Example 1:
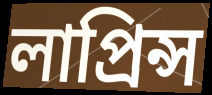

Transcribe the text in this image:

লাপ্রিন্স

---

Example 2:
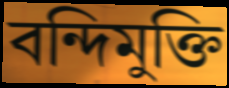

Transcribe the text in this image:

বন্দিমুক্তি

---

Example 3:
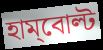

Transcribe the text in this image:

হাম্‌বোল্ট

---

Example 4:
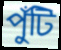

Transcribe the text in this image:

পুঁটি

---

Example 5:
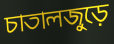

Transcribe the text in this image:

চাতালজুড়ে